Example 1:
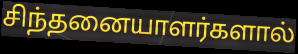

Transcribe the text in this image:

சிந்தனையாளர்களால்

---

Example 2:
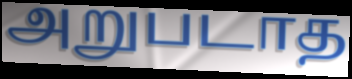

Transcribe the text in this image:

அறுபடாத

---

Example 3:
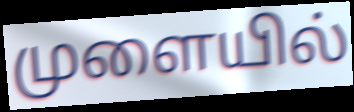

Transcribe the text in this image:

முளையில்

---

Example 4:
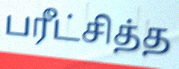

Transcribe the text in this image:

பரீட்சித்த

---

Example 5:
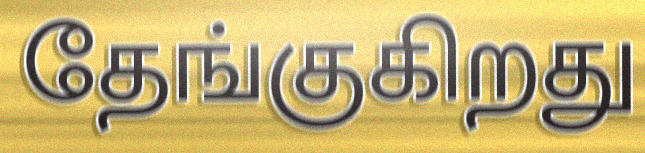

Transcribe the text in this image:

தேங்குகிறது